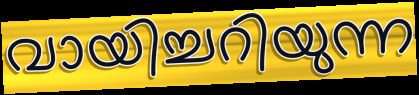
വായിച്ചറിയുന്ന